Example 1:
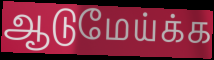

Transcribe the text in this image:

ஆடுமேய்க்க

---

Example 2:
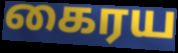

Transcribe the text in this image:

கைரய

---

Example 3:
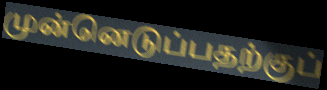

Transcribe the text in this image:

முன்னெடுப்பதற்குப்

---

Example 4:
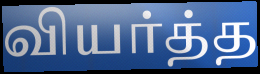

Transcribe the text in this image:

வியர்த்த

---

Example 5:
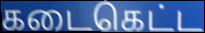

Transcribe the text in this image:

கடைகெட்ட